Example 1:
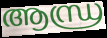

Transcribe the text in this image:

ആന്ധ്ര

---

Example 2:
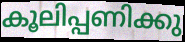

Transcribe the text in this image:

കൂലിപ്പണിക്കു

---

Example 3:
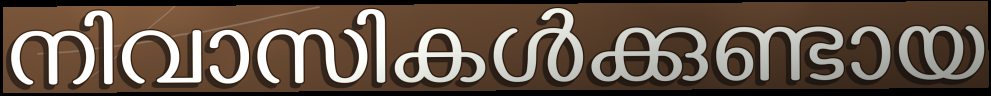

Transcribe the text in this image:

നിവാസികൾക്കുണ്ടായ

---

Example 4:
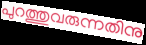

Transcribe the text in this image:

പുറത്തുവരുന്നതിനു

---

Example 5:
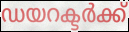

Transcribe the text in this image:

ഡയറക്ടർക്ക്